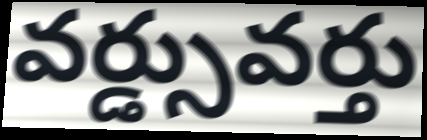
వర్డ్సువర్తు